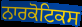
ਨਾਰਕੋਟਿਕਸ